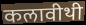
कलावीथी